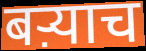
बऱ्‍याच